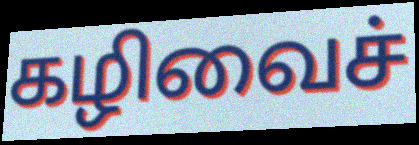
கழிவைச்